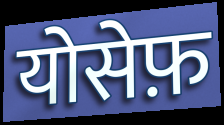
योसेफ़